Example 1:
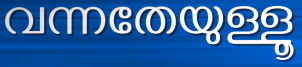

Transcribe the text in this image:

വന്നതേയുള്ളൂ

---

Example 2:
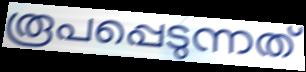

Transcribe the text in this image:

രൂപപ്പെടുന്നത്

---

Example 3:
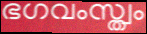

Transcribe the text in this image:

ഭഗവംസ്ത്വം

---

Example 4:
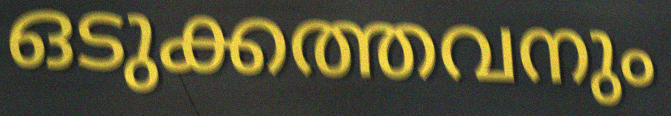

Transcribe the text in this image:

ഒടുക്കത്തവനും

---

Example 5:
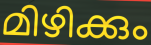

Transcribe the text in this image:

മിഴിക്കും